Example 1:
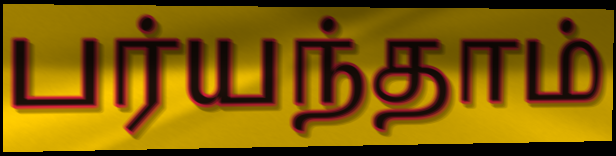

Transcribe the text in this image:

பர்யந்தாம்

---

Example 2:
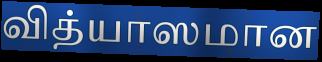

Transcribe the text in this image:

வித்யாஸமான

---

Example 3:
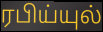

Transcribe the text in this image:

ரபிய்யுல்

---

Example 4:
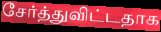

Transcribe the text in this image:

சேர்த்துவிட்டதாக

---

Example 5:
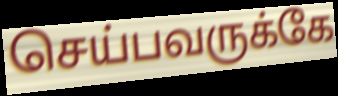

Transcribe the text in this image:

செய்பவருக்கே